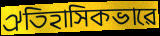
ঐতিহাসিকভাৱে